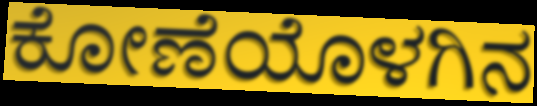
ಕೋಣೆಯೊಳಗಿನ